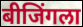
बीजिंगला